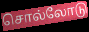
சொல்லோடு